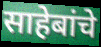
साहेबांचे